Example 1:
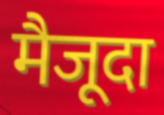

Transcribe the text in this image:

मैजूदा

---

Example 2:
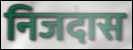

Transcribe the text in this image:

निजदास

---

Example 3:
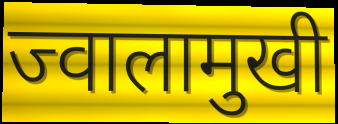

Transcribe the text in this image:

ज्वालामुखी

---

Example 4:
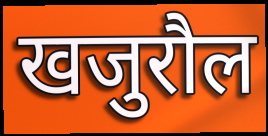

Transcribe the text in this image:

खजुरौल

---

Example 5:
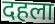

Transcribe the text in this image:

दहला